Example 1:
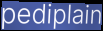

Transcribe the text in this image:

pediplain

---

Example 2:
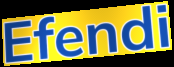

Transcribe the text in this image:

Efendi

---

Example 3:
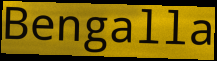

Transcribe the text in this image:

Bengalla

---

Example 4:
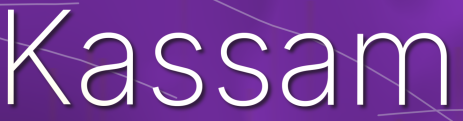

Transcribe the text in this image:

Kassam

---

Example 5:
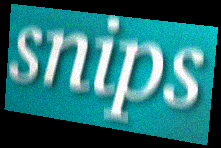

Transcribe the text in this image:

snips